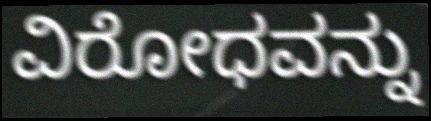
ವಿರೋಧವನ್ನು